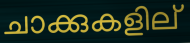
ചാക്കുകളില്